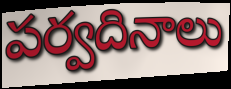
పర్వదినాలు